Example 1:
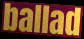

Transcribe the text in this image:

ballad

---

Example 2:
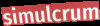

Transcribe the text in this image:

simulcrum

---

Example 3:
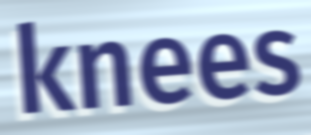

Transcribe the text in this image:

knees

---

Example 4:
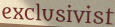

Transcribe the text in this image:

exclusivist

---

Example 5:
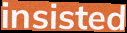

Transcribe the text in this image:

insisted